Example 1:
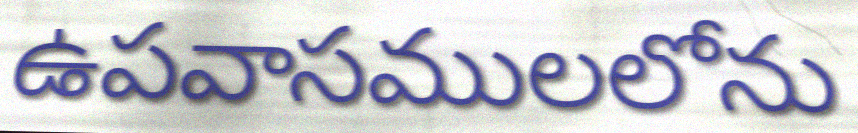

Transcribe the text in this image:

ఉపవాసములలోను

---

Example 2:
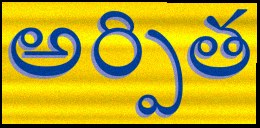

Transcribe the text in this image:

అర్పిత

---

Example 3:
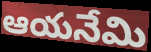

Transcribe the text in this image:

ఆయనేమి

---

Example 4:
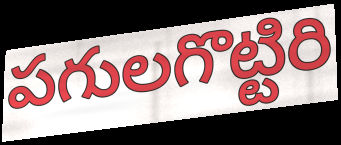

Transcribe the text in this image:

పగులగొట్టిరి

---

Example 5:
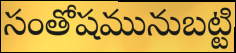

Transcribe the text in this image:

సంతోషమునుబట్టి